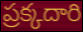
ప్రక్కదారి